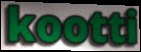
kootti